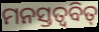
ମନସ୍ତତ୍ୱବିତ୍